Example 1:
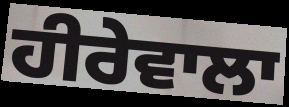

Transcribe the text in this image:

ਹੀਰੇਵਾਲਾ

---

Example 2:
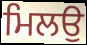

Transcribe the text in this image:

ਮਿਲਉ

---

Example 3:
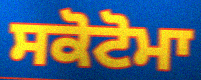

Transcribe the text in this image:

ਸਕੋਟੋਮਾ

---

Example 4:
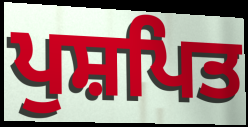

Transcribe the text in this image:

ਪੁਸ਼ਪਿਤ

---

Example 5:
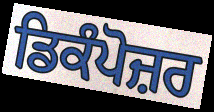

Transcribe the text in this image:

ਡਿਕੰਪੋਜ਼ਰ